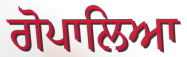
ਗੋਪਾਲਿਆ